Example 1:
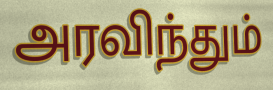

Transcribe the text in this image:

அரவிந்தும்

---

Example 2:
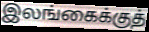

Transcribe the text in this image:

இலங்கைக்குத்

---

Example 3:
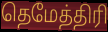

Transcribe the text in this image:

தெமேத்திரி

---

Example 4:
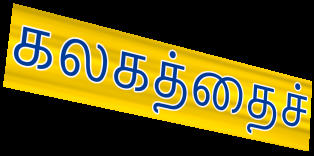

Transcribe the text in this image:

கலகத்தைச்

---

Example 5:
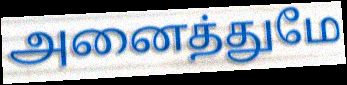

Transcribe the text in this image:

அனைத்துமே